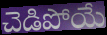
చెడిపోయే